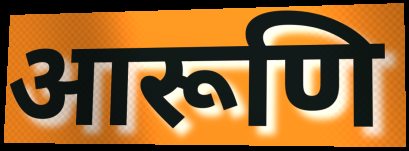
आरूणि